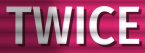
TWICE